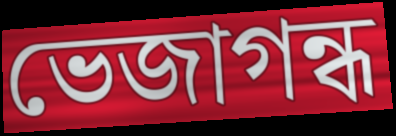
ভেজাগন্ধ